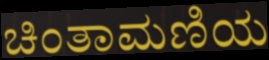
ಚಿಂತಾಮಣಿಯ